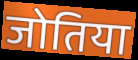
जोतिया